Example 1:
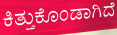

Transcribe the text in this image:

ಕಿತ್ತುಕೊಂಡಾಗಿದೆ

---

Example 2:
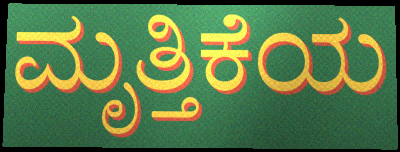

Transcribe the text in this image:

ಮೃತ್ತಿಕೆಯ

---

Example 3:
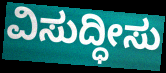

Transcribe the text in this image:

ವಿಸುದ್ಧೀಸು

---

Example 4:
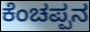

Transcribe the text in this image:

ಕೆಂಚಪ್ಪನ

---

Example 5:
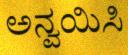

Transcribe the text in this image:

ಅನ್ವಯಿಸಿ